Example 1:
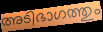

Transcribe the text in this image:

അടിഭാഗത്തും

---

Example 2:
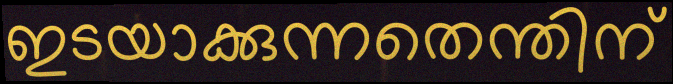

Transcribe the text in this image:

ഇടയാക്കുന്നതെന്തിന്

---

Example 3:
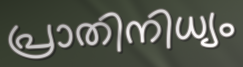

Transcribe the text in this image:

പ്രാതിനിധ്യം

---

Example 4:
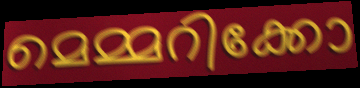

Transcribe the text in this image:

മെമ്മറിക്കോ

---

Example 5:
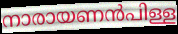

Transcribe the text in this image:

നാരായണൻപിള്ള